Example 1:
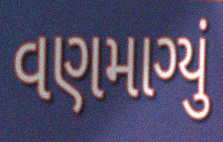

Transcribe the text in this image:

વણમાગ્યું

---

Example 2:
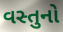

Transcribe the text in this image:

વસ્તુનો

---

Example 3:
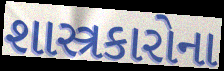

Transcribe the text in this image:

શાસ્ત્રકારોના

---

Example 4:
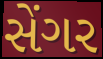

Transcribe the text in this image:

સેંગર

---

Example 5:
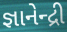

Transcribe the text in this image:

જ્ઞાનેન્દ્રી